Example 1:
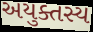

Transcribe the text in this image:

અયુક્તસ્ય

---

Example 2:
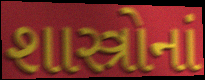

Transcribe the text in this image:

શાસ્ત્રોનાં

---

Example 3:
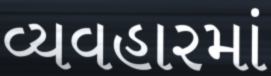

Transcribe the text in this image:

વ્યવહારમાં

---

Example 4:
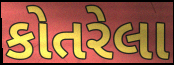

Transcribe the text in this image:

કોતરેલા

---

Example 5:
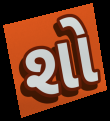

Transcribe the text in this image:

શો